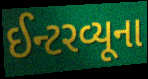
ઈન્ટરવ્યૂના